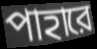
পাহারে